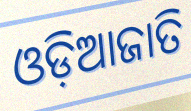
ଓଡ଼ିଆଜାତି